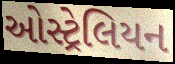
ઓસ્ટ્રેલિયન